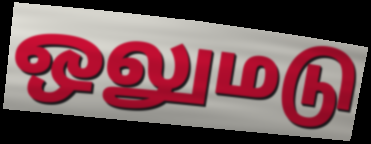
ஒலுமடு